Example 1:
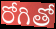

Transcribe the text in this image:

రోగితో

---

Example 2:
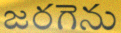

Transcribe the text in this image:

జరగెను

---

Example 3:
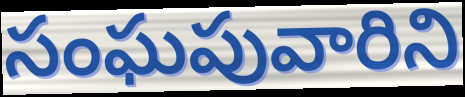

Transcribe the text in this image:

సంఘపువారిని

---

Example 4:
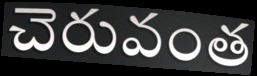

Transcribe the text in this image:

చెరువంత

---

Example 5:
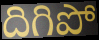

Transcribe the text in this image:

దిగిపో